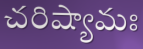
చరిష్యామః